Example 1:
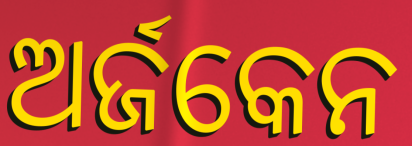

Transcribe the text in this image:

ଅର୍ଜକେନ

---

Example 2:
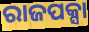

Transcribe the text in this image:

ରାଜପକ୍ସା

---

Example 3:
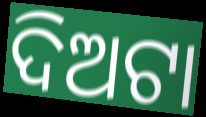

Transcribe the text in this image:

ଦିଅଟା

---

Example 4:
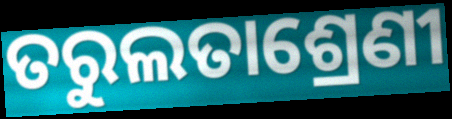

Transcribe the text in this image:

ତରୁଲତାଶ୍ରେଣୀ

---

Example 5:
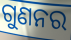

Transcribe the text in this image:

ଗୁଣନର